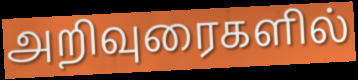
அறிவுரைகளில்